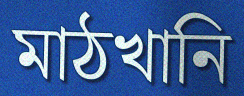
মাঠখানি